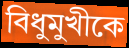
বিধুমুখীকে